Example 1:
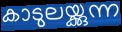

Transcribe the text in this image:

കാടുലയ്ക്കുന്ന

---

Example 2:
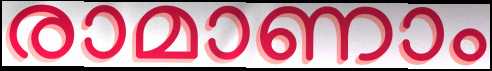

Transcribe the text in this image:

രാമാണാം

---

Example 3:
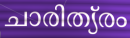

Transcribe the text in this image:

ചാരിത്യ്രം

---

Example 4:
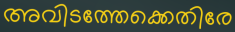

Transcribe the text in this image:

അവിടത്തേക്കെതിരേ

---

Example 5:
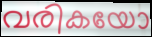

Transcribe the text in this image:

വരികയോ